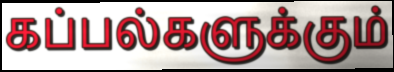
கப்பல்களுக்கும்